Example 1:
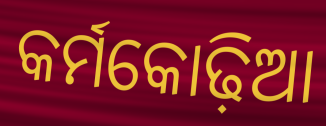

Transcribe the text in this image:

କର୍ମକୋଢ଼ିଆ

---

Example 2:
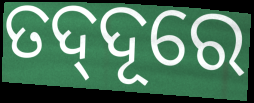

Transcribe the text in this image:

ତଦ୍‍ଦୂରେ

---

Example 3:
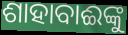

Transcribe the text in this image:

ଶାହାବାଈଙ୍କୁ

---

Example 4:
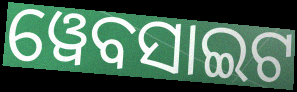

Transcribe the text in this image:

ୱେବସାଇଟ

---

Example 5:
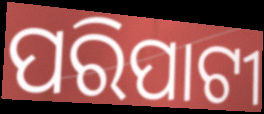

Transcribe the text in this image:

ପରିପାଟୀ